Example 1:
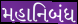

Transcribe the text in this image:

મહાનિબંધ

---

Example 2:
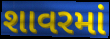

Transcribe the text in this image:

શાવરમાં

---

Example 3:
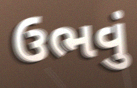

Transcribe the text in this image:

ઉભવું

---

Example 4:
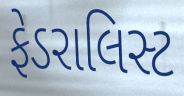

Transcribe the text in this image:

ફેડરાલિસ્ટ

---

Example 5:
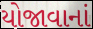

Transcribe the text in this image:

યોજાવાનાં